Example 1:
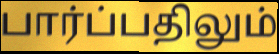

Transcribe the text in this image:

பார்ப்பதிலும்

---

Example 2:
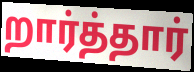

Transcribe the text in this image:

றார்த்தார்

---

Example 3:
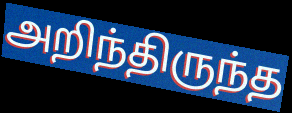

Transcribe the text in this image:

அறிந்திருந்த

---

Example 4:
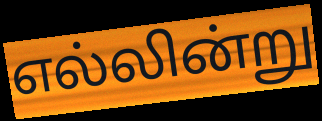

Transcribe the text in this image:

எல்லின்று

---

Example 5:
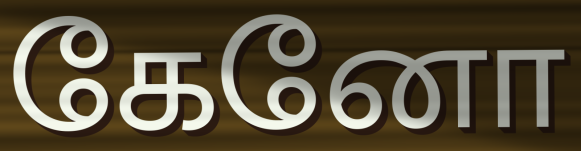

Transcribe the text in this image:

கேனோ